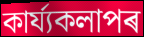
কাৰ্য্যকলাপৰ